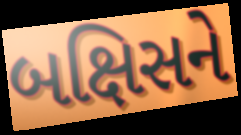
બક્ષિસને